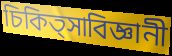
চিকিত্সাবিজ্ঞানী